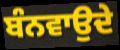
ਬੰਨਵਾਉਦੇ